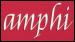
amphi